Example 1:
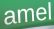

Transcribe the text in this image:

amel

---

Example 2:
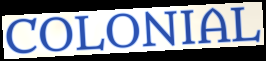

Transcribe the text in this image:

COLONIAL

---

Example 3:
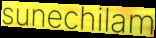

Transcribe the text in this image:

sunechilam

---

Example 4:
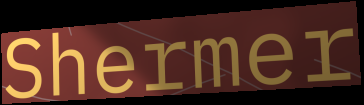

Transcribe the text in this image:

Shermer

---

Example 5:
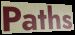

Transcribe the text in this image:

Paths